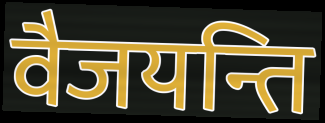
वैजयन्ति